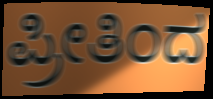
ಪ್ರೀತಿಂದ